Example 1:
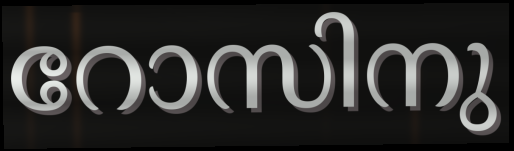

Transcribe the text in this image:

റോസിനു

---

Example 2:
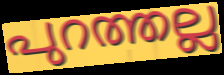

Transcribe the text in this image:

പുറത്തല്ല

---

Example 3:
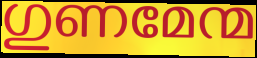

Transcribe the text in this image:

ഗുണമേന്മ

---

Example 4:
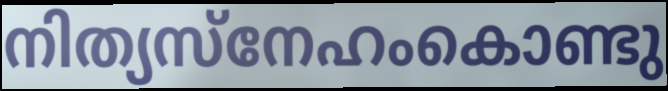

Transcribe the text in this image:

നിത്യസ്നേഹംകൊണ്ടു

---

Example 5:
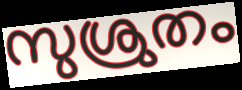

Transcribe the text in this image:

സുശ്രുതം